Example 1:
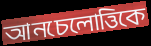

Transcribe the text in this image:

আনচেলোত্তিকে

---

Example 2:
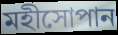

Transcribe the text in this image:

মহীসোপান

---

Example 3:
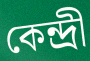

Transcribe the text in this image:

কেন্দ্রী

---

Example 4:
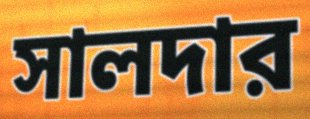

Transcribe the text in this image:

সালদার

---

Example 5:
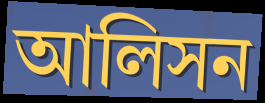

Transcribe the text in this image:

আলিসন